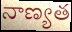
నాణ్యత